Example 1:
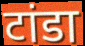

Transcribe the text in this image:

टांडा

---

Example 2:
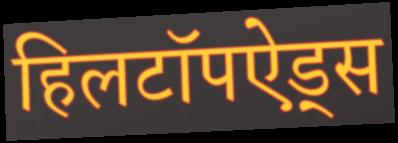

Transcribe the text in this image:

हिलटॉपऐड्स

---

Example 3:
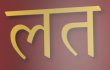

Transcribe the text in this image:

लत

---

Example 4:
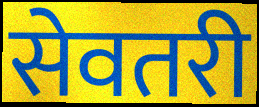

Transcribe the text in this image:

सेवतरी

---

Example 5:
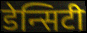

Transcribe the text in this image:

डेन्सिटी